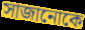
সাজানোকে